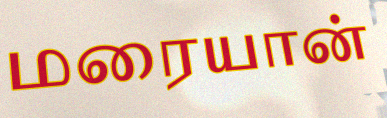
மரையான்